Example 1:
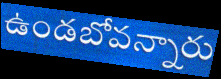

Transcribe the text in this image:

ఉండబోవన్నారు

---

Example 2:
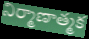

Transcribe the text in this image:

నిర్మాణాత్మక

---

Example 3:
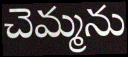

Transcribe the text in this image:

చెమ్మను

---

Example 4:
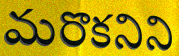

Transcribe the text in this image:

మరొకనిని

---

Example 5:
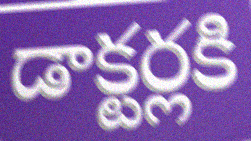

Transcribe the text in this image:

డాక్టర్లకి